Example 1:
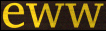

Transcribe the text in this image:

eww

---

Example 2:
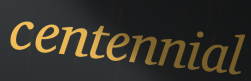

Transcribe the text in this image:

centennial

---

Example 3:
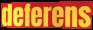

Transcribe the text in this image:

deferens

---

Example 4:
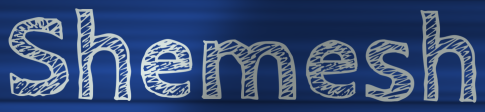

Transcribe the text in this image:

Shemesh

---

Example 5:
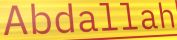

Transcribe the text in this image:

Abdallah